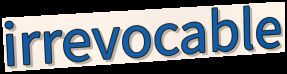
irrevocable